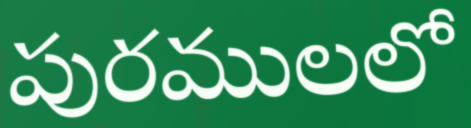
పురములలో